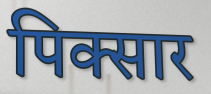
पिक्सार